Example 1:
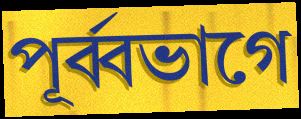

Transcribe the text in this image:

পূর্ব্বভাগে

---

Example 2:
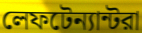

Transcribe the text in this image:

লেফটেন্যান্টরা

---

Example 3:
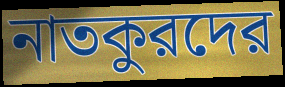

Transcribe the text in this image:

নাতকুরদের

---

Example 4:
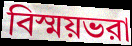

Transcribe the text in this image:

বিস্ময়ভরা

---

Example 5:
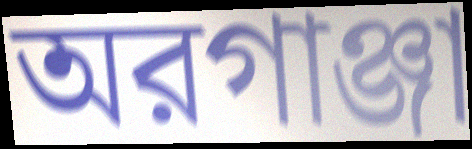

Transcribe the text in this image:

অরগাঞ্জা